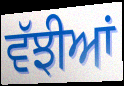
ਵੱਝੀਆਂ